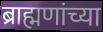
ब्राह्मणांच्या